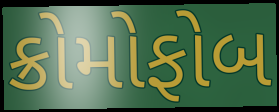
ક્રોમોફોબ